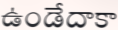
ఉండేదాకా